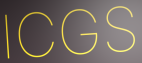
ICGS